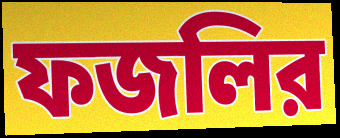
ফজলির